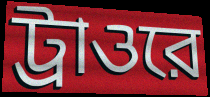
ট্রাওরে